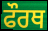
ਫੌਰਥ